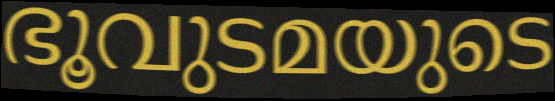
ഭൂവുടമയുടെ